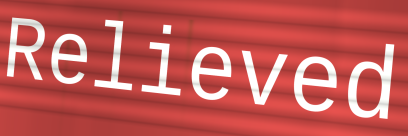
Relieved